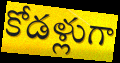
కోడళ్లుగా